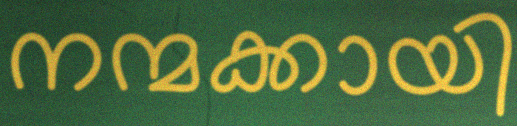
നന്മക്കായി